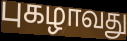
புகழாவது